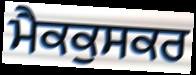
ਮੈਕਕੁਸਕਰ